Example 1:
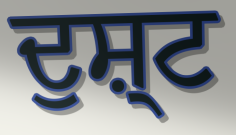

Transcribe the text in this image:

ਦੁਸ਼੍ਟ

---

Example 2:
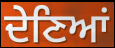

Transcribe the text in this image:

ਦੇਣਿਆਂ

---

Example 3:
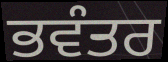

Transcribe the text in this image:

ਭਵੰਤਰ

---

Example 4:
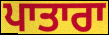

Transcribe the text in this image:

ਪਾਤਾਰਾ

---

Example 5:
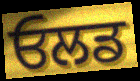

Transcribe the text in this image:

ਓਲਡ